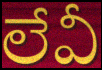
లేవీ